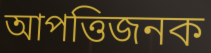
আপত্তিজনক